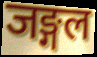
जङ्गल